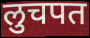
लुचपत